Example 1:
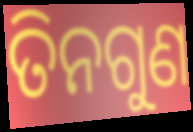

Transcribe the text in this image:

ତିନଗୁଣ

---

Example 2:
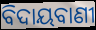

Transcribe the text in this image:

ବିଦାୟବାଣୀ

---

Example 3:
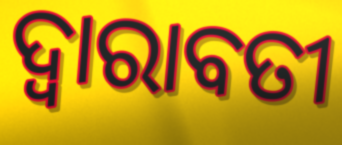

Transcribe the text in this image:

ଦ୍ଵାରାବତୀ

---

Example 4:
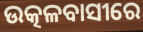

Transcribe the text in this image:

ଉତ୍କଳବାସୀରେ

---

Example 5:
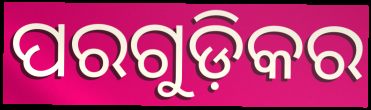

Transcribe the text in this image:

ପରଗୁଡ଼ିକର